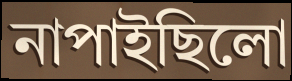
নাপাইছিলো